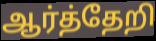
ஆர்த்தேறி